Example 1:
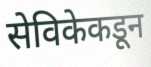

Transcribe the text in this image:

सेविकेकडून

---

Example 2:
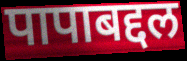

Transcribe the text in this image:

पापाबद्दल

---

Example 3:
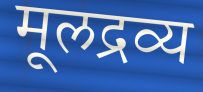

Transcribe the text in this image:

मूलद्रव्य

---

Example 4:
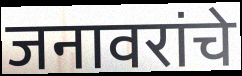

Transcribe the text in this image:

जनावरांचे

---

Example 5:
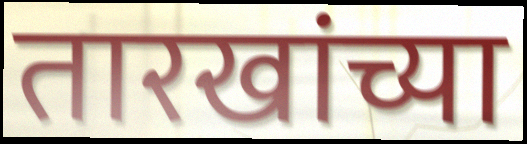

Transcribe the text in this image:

तारखांच्या